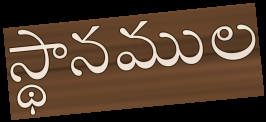
స్థానముల